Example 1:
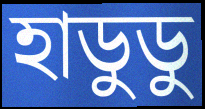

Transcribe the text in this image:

হাডুডু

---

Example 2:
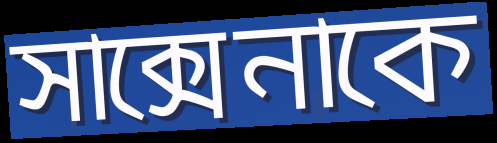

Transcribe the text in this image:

সাক্সেনাকে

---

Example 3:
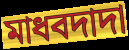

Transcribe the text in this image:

মাধবদাদা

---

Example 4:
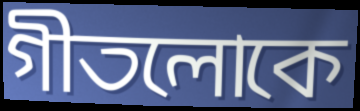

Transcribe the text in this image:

গীতলোকে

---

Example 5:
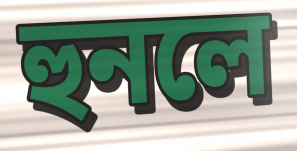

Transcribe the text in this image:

হুনলে